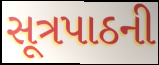
સૂત્રપાઠની